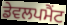
ਡੇਵਲਪਮੈਂਟ